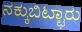
ನಕ್ಕುಬಿಟ್ಟಾರು